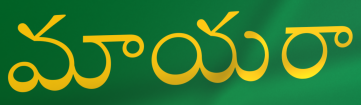
మాయరా